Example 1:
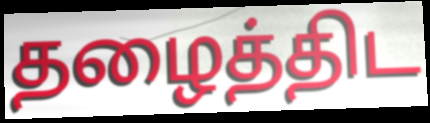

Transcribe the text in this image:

தழைத்திட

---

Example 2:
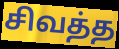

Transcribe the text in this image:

சிவத்த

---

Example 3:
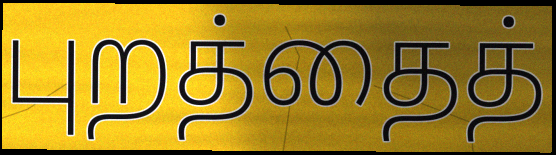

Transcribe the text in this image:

புறத்தைத்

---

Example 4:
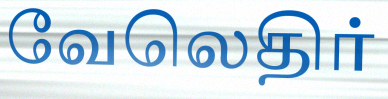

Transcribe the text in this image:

வேலெதிர்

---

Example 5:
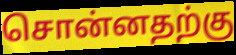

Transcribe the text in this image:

சொன்னதற்கு